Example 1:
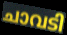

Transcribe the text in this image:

ചാവടി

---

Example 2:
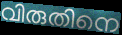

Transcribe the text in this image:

വിരുതിനെ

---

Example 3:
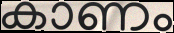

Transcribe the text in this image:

കാണം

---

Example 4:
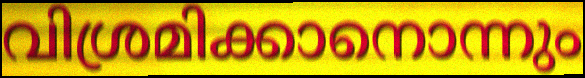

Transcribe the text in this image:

വിശ്രമിക്കാനൊന്നും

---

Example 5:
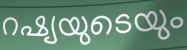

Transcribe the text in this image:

റഷ്യയുടെയും